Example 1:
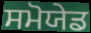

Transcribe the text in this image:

ਸਮੋਯੇਡ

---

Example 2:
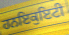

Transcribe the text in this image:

ਹਨਇਕੁਇਟੀ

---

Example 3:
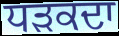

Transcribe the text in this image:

ਧੜਕਦਾ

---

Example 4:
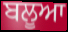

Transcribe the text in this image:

ਬਲੂਆ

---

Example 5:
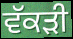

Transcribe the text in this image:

ਵੱਕੜੀ